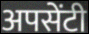
अपसेंटी